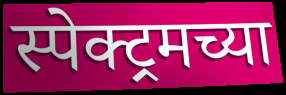
स्पेक्ट्रमच्या